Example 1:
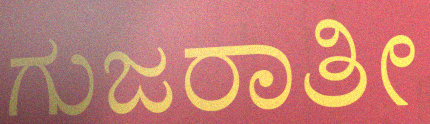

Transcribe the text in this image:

ಗುಜರಾತೀ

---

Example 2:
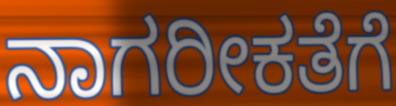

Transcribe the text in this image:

ನಾಗರೀಕತೆಗೆ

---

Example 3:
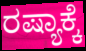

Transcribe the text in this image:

ರಷ್ಯಾಕ್ಕೆ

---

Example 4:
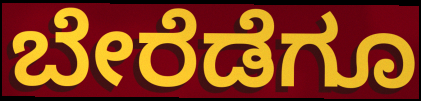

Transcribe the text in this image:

ಬೇರೆಡೆಗೂ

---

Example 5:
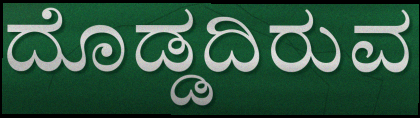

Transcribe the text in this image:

ದೊಡ್ಡದಿರುವ